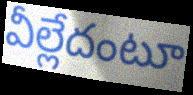
వీల్లేదంటూ